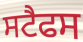
ਸਟੈਫਸ